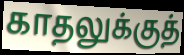
காதலுக்குத்